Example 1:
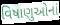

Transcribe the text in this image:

વિષાણુઓનાં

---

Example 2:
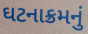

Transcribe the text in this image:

ઘટનાક્રમનું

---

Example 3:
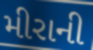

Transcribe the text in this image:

મીરાની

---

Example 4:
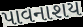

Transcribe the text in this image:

પાવનાશય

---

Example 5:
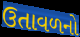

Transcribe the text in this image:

ઉતાવળનો